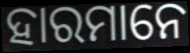
ହାରମାନେ